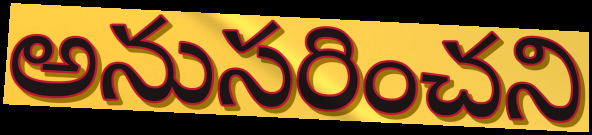
అనుసరించని